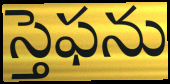
స్తెఫను